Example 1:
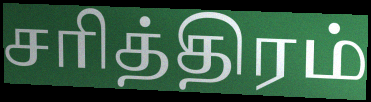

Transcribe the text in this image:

சரித்திரம்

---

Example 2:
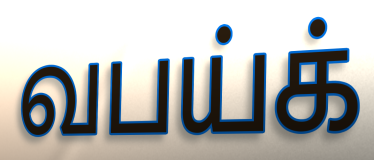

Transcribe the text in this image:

வபய்க்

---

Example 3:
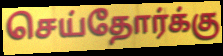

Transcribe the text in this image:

செய்தோர்க்கு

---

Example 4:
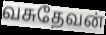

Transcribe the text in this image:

வசுதேவன்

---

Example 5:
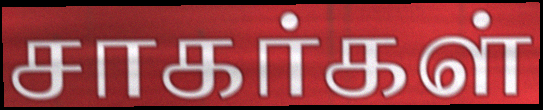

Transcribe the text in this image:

சாகர்கள்